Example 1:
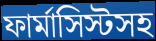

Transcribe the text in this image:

ফার্মাসিস্টসহ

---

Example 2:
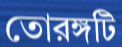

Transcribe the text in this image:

তোরঙ্গটি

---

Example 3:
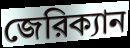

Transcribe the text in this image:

জেরিক্যান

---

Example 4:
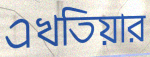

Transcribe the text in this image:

এখতিয়ার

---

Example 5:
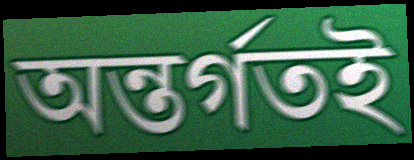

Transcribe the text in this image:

অন্তর্গতই